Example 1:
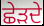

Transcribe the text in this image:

ਛੇੜਦੇ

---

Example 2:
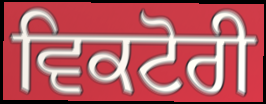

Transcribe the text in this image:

ਵਿਕਟੋਰੀ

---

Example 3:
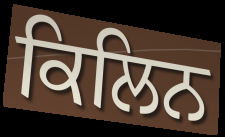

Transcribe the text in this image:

ਕਿਲਿਨ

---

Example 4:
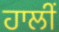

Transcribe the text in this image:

ਹਾਲੀਂ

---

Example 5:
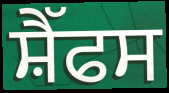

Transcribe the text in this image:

ਸ਼ੈੱਫਸ